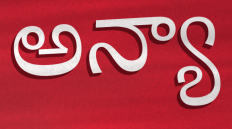
అన్యా